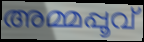
അമ്മപ്പൂവ്